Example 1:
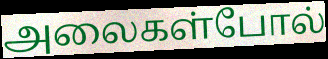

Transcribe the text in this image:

அலைகள்போல்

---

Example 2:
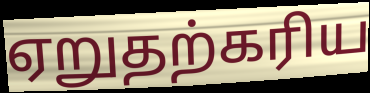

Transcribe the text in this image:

ஏறுதற்கரிய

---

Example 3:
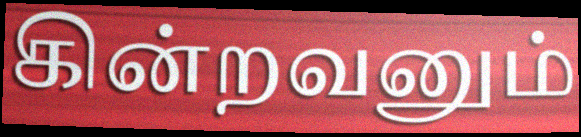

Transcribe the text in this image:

கின்றவனும்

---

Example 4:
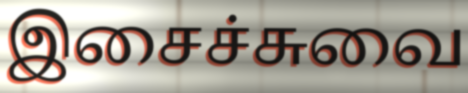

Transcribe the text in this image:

இசைச்சுவை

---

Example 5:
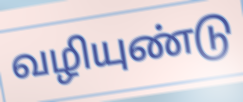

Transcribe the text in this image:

வழியுண்டு